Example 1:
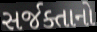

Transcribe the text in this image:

સર્જક્તાનો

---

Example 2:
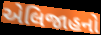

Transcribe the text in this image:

એલિજાહનો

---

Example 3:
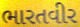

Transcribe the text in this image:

ભારતવીર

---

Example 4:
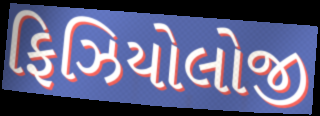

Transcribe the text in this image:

ફિઝિયોલોજી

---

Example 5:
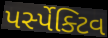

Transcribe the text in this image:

પર્સ્પેક્ટિવ